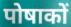
पोषाकों